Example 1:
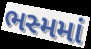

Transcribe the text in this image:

ભસ્મમાં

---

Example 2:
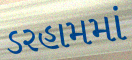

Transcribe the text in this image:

ડરહામમાં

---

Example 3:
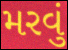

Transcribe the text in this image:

મરવું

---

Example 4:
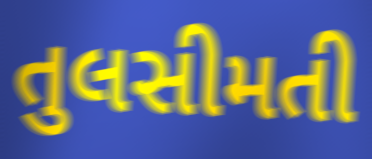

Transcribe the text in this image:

તુલસીમતી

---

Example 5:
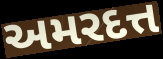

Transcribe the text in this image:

અમરદત્ત